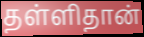
தள்ளிதான்